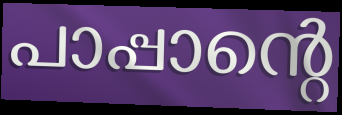
പാപ്പാന്റെ